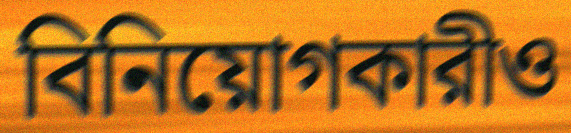
বিনিয়োগকারীও